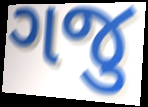
ગજુ